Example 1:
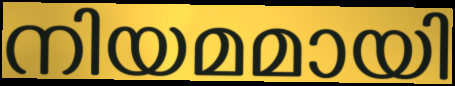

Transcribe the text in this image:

നിയമമായി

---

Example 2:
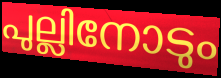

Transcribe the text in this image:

പുല്ലിനോടും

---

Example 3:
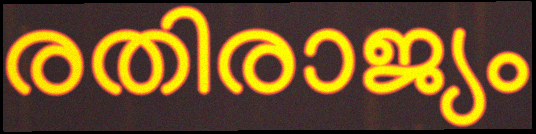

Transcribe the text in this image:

രതിരാജ്യം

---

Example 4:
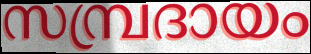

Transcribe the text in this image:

സമ്പ്രദായം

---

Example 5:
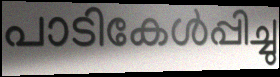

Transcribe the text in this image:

പാടികേൾപ്പിച്ചു